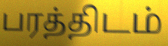
பரத்திடம்